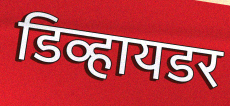
डिव्हायडर